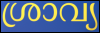
ശ്രാവ്യ